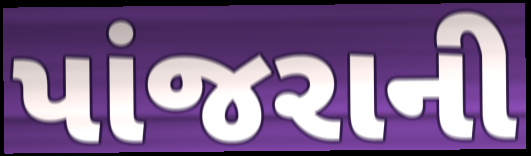
પાંજરાની